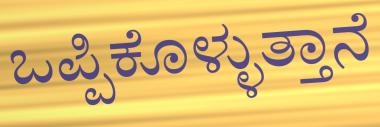
ಒಪ್ಪಿಕೊಳ್ಳುತ್ತಾನೆ